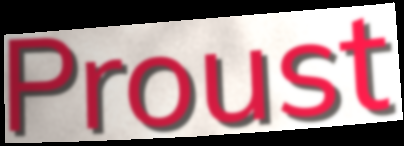
Proust